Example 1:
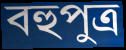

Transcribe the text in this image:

বহুপুত্র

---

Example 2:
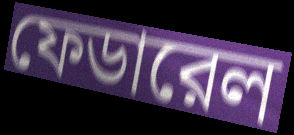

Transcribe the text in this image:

ফেডারেল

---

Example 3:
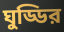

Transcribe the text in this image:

ঘুড্ডির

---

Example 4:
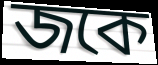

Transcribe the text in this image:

জকে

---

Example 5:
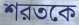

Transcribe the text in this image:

শরতকে